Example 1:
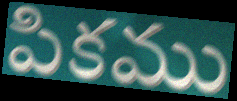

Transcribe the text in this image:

పికము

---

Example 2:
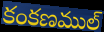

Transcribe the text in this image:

కంకణముల్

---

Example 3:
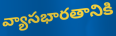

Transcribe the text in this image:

వ్యాసభారతానికి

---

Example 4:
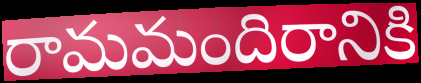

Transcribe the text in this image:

రామమందిరానికి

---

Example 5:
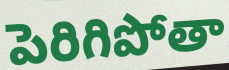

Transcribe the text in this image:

పెరిగిపోతా